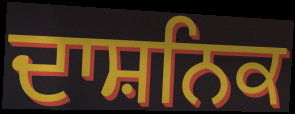
ਦਾਸ਼ਨਿਕ